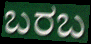
ಬರಬ